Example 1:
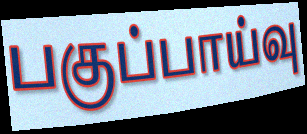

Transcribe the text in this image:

பகுப்பாய்வு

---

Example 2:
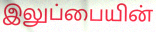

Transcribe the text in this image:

இலுப்பையின்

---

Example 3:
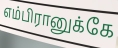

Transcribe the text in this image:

எம்பிரானுக்கே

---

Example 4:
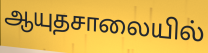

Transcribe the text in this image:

ஆயுதசாலையில்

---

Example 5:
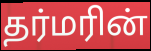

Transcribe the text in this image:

தர்மரின்